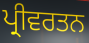
ਪ੍ਰੀਵਰਤਨ